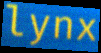
lynx